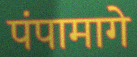
पंपामागे